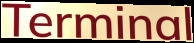
Terminal